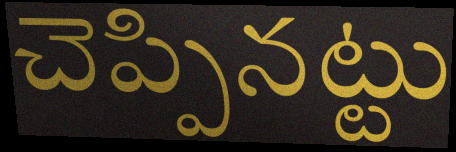
చెప్పినట్టు